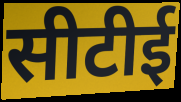
सीटीई